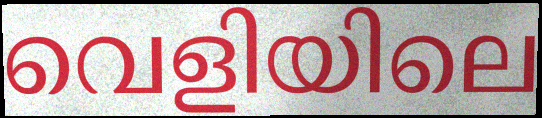
വെളിയിലെ